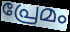
പ്രേമം